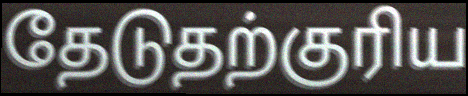
தேடுதற்குரிய